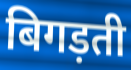
बिगड़ती